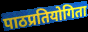
पाठप्रतियोगिता